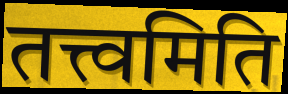
तत्त्वमिति